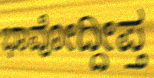
ಭಾವೋದ್ದೀಪ್ತ